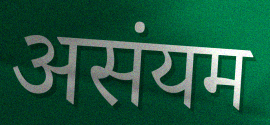
असंयम